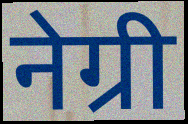
नेग्री